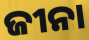
ଜୀନା